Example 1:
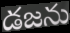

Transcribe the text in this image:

డజను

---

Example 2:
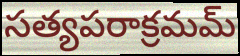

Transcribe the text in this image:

సత్యపరాక్రమమ్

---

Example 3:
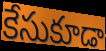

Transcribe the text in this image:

కేసుకూడా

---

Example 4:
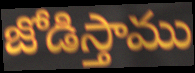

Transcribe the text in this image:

జోడిస్తాము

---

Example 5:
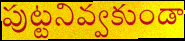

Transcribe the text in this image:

పుట్టనివ్వకుండా